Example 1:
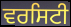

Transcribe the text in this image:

ਵਰਸਿਟੀ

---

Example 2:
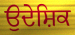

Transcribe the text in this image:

ਉਦੇਸ਼ਿਕ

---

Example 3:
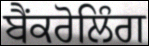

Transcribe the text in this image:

ਬੈਂਕਰੋਲਿੰਗ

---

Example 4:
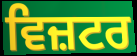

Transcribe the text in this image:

ਵਿਜ਼ਟਰ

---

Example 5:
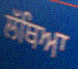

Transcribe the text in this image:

ਲੱਥਿਆ